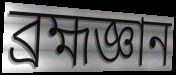
ব্রহ্মজ্ঞান